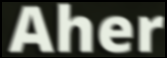
Aher